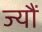
ज्यौं